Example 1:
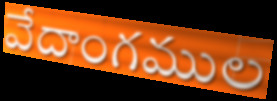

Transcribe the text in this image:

వేదాంగముల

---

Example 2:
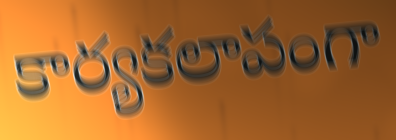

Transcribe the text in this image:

కార్యకలాపంగా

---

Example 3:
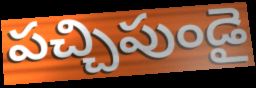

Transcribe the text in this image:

పచ్చిపుండై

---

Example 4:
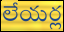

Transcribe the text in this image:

లేయర్ల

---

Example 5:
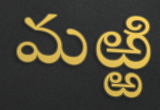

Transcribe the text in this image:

మఱ్ఱి